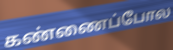
கண்ணைப்போல